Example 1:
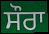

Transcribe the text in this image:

ਸੌਰਾ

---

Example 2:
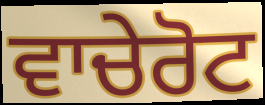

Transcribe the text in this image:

ਵਾਚੇਰੋਟ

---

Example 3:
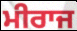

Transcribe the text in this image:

ਮੀਰਾਜ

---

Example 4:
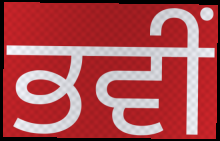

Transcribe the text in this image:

ਭਵੀਂ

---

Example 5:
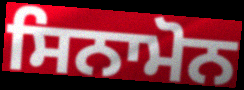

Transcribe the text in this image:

ਸਿਨਾਮੋਨ